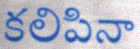
కలిపినా